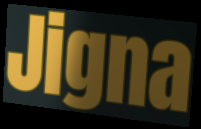
Jigna